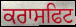
ਕਰਾਸਫਿਟ